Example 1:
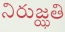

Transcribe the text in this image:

నిరుజ్ఝతి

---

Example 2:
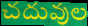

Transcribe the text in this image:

చదువుల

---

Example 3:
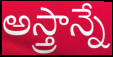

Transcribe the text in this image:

అస్త్రాన్నే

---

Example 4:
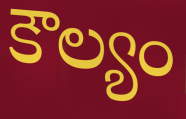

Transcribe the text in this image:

కౌల్యం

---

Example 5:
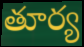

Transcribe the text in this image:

తూర్య